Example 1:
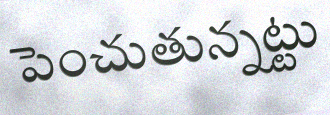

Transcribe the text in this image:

పెంచుతున్నట్టు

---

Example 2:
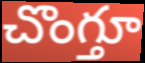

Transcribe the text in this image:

చొంగ్తూ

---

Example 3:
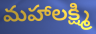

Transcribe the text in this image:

మహాలక్ష్మి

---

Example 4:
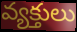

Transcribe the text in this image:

వ్యక్తులు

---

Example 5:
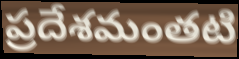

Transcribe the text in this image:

ప్రదేశమంతటి